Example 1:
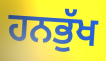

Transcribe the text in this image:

ਹਨਭੁੱਖ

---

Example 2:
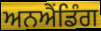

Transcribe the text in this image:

ਅਨਐਂਡਿੰਗ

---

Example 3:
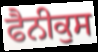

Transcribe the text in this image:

ਫੈਨੀਕੁਸ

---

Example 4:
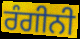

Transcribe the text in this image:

ਰੰਗੀਨੀ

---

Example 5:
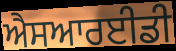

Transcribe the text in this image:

ਐਸਆਰਈਡੀ